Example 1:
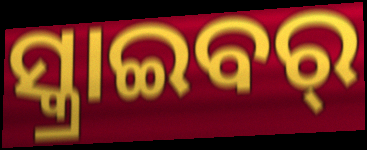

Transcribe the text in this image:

ସ୍କ୍ରାଇବର୍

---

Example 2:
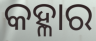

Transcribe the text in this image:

କହ୍ଳାର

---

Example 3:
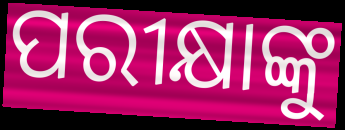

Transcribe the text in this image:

ପରୀକ୍ଷାଙ୍କୁ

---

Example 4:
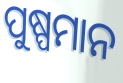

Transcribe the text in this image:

ପୁଷ୍ପମାନ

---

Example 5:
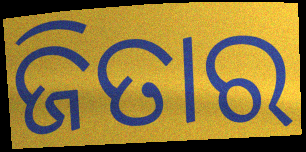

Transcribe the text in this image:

ଜିତାର